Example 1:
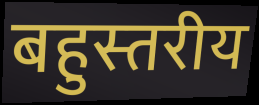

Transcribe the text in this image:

बहुस्तरीय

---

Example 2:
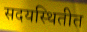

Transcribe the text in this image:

सदयस्थितीत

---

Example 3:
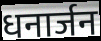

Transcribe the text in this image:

धनार्जन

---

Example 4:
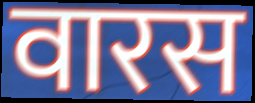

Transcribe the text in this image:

वारस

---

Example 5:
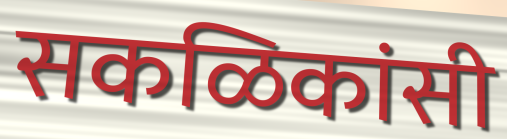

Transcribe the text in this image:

सकळिकांसी